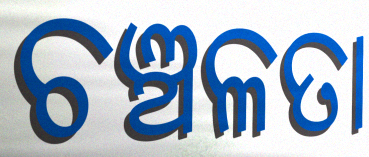
ଚଞ୍ଚଳତା